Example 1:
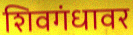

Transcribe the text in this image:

शिवगंधावर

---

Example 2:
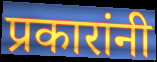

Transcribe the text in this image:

प्रकारांनी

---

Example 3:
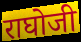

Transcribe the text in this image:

राघोजी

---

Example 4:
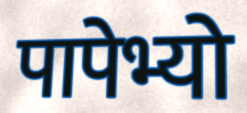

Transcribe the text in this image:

पापेभ्यो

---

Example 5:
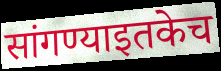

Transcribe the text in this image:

सांगण्याइतकेच